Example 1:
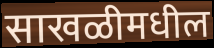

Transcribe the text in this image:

साखळीमधील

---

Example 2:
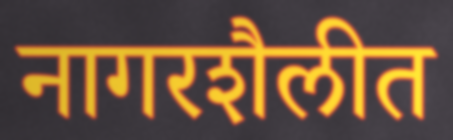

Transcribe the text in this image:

नागरशैलीत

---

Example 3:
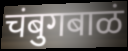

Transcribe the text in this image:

चंबुगबाळं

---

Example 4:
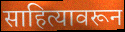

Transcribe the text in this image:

साहित्यावरून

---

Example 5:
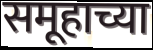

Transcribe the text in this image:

समूहाच्या